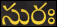
సురః